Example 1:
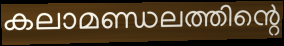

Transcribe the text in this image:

കലാമണ്ഡലത്തിന്റെ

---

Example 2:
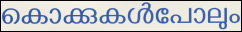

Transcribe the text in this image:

കൊക്കുകൾപോലും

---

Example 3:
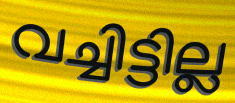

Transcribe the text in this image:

വച്ചിട്ടില്ല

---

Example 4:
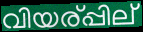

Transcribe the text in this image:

വിയര്പ്പില്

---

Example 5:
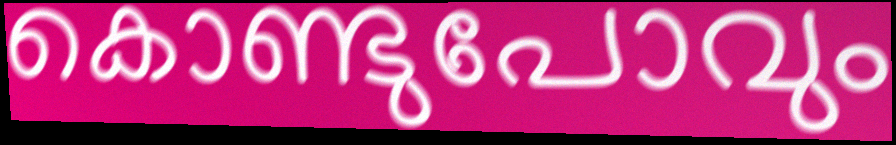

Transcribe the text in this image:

കൊണ്ടുപോവും